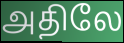
அதிலே